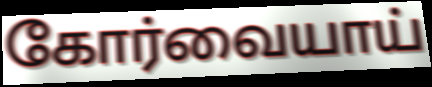
கோர்வையாய்